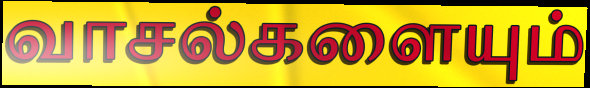
வாசல்களையும்